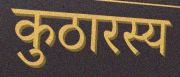
कुठारस्य